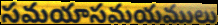
సమయాసమయములు